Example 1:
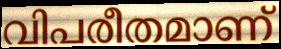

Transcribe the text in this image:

വിപരീതമാണ്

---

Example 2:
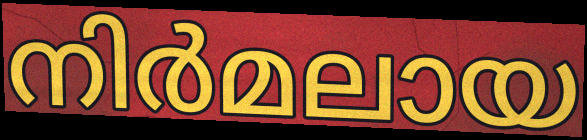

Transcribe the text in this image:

നിർമലായ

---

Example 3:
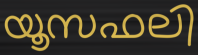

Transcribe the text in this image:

യൂസഫലി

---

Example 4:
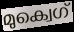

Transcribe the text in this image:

മുക്വെഗ്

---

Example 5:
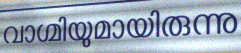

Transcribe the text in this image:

വാഗ്മിയുമായിരുന്നു